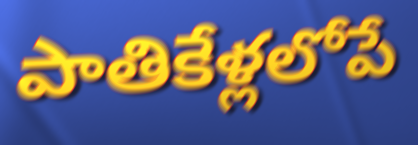
పాతికేళ్లలోపే